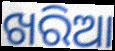
ଖରିଆ